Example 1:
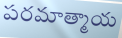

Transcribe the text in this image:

పరమాత్మాయ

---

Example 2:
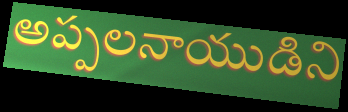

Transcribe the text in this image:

అప్పలనాయుడిని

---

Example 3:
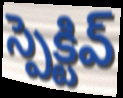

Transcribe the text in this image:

స్పెక్టివ్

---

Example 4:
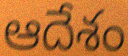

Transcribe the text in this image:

ఆదేశం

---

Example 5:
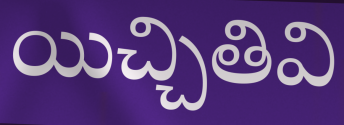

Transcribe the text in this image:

యిచ్చితివి